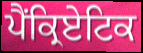
ਪੈਂਕ੍ਰਿਏਟਿਕ